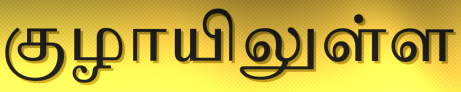
குழாயிலுள்ள